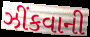
ઝીંકવાની